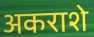
अकराशे